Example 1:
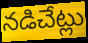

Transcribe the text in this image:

నడిచేట్లు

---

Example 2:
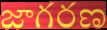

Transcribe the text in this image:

జాగరణ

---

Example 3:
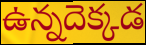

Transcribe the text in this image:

ఉన్నదెక్కడ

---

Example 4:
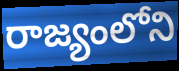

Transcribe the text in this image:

రాజ్యంలోని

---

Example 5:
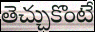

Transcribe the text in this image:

తెచ్చుకొంటే